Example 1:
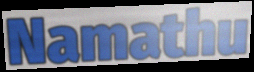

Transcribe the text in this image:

Namathu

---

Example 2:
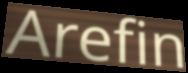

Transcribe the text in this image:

Arefin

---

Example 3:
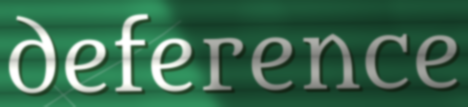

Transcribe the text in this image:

deference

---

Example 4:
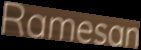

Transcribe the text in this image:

Ramesan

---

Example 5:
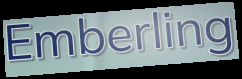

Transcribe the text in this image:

Emberling